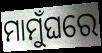
ମାମୁଁଘରେ